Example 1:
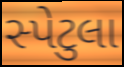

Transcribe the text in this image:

સ્પેટુલા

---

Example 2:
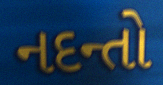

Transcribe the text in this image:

નદન્તો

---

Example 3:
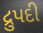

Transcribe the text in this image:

દ્રુપદી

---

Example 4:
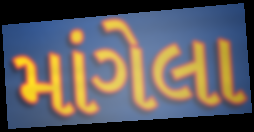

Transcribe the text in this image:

માંગેલા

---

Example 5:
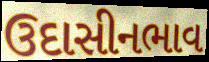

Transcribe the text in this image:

ઉદાસીનભાવ